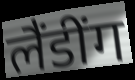
लैंडींग